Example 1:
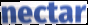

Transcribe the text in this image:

nectar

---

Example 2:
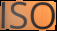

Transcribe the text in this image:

ISO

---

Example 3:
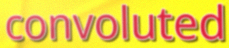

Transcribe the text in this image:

convoluted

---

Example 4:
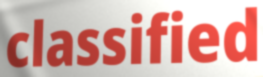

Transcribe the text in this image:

classified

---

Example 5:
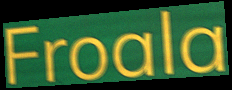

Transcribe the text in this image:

Froala